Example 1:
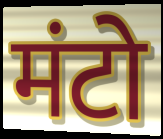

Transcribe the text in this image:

मंटो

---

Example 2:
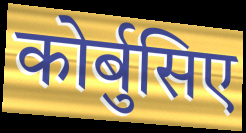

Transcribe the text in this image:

कोर्बुसिए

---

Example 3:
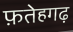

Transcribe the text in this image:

फ़तेहगढ़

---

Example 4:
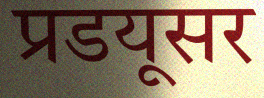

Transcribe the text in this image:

प्रडयूसर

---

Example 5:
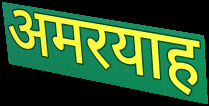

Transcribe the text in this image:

अमरयाह